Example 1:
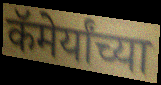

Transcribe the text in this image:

कॅमेर्यांच्या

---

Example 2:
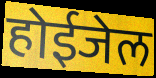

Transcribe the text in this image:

होईजेल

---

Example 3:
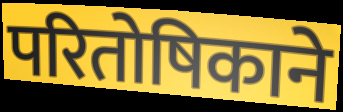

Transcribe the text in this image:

परितोषिकाने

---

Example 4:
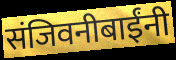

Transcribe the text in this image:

संजिवनीबाईंनी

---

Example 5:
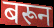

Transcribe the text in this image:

बरून